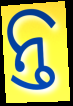
ନ୍ତ